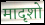
मादृशो